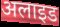
अलाइड